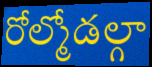
రోల్మోడల్గా